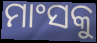
ମାଂସକୁ